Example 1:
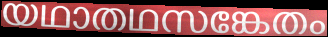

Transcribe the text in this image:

യഥാതഥസങ്കേതം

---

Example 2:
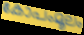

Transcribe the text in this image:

കോപംമൂലം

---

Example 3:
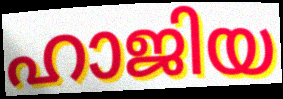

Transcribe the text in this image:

ഹാജിയ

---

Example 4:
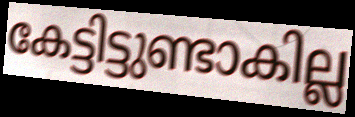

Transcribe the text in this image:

കേട്ടിട്ടുണ്ടാകില്ല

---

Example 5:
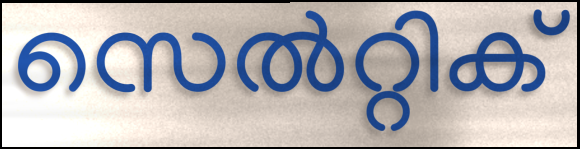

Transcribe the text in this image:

സെൽറ്റിക്